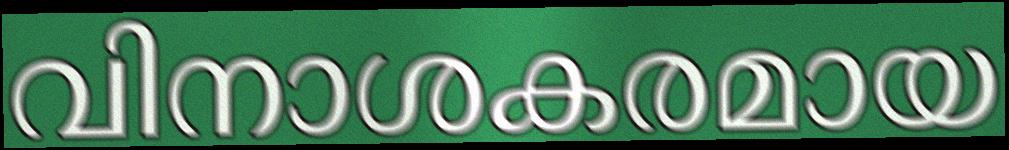
വിനാശകരമായ